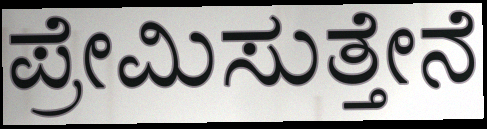
ಪ್ರೇಮಿಸುತ್ತೇನೆ